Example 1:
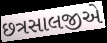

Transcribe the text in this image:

છત્રસાલજીએ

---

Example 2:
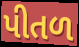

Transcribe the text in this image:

પીતળ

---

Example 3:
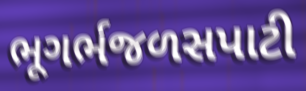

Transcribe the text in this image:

ભૂગર્ભજળસપાટી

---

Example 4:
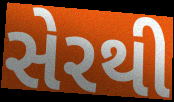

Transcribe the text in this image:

સેરથી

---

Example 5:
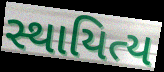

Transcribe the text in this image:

સ્થાયિત્ય